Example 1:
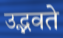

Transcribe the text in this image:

उद्भवते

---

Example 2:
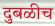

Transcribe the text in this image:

दुबळीच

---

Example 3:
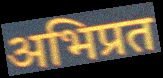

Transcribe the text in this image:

अभिप्रत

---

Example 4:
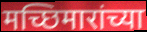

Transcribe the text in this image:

मच्छिमारांच्या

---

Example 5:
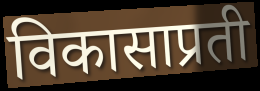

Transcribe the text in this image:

विकासाप्रती